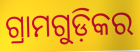
ଗ୍ରାମଗୁଡ଼ିକର